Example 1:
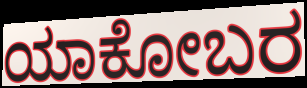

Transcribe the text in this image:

ಯಾಕೋಬರ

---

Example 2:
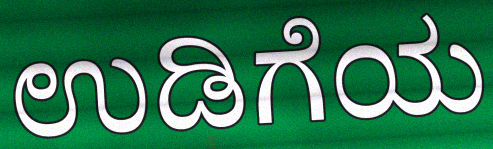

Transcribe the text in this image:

ಉಡಿಗೆಯ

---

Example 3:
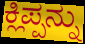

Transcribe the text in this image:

ಕ್ಲಿಪ್ಪನ್ನು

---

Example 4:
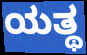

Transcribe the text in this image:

ಯತ್ಥ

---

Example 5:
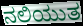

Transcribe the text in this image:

ನಲಿಯುತ